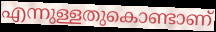
എന്നുള്ളതുകൊണ്ടാണ്